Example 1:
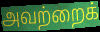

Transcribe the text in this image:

அவற்றைக்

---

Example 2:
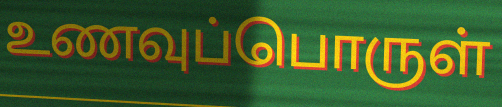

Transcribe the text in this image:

உணவுப்பொருள்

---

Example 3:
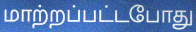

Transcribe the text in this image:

மாற்றப்பட்டபோது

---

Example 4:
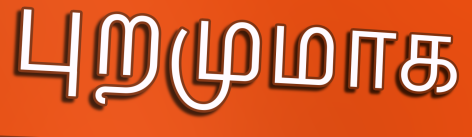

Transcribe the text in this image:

புறமுமாக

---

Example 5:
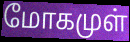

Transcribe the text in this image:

மோகமுள்